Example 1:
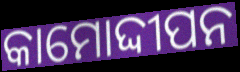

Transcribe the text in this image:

କାମୋଦ୍ଦୀପନ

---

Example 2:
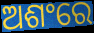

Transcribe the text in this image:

ଅଶଂରେ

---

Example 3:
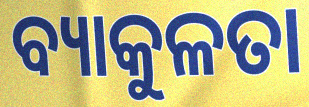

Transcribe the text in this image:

ବ୍ୟାକୁଳତା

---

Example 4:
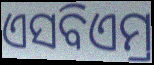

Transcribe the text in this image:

ଏସବିଏମ୍ର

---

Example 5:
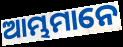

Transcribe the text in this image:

ଆମ୍ଭମାନେ